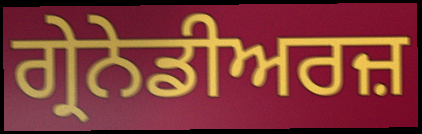
ਗ੍ਰੇਨੇਡੀਅਰਜ਼